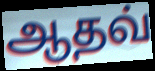
ஆதவ்